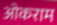
ओकराम